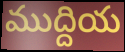
ముద్దియ